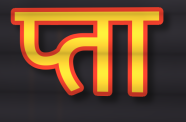
प्ता